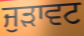
ਜੁੜਾਵਟ